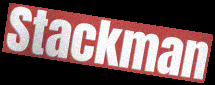
Stackman